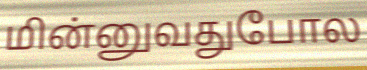
மின்னுவதுபோல